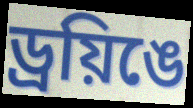
ড্রয়িঙে